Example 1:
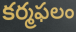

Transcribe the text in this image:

కర్మఫలం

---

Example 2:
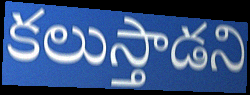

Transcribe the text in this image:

కలుస్తాడని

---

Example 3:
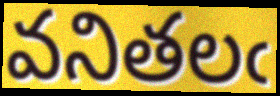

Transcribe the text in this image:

వనితలఁ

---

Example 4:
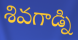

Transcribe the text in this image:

శివగాడ్ని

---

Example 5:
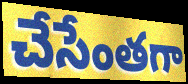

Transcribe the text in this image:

చేసేంతగా